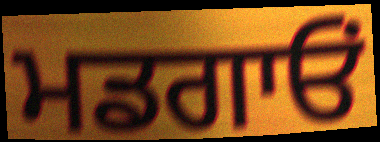
ਮਡਗਾਓਂ